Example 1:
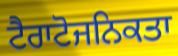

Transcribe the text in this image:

ਟੈਰਾਟੋਜਨਿਕਤਾ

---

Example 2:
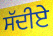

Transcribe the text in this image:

ਸੱਦੀਏ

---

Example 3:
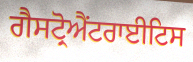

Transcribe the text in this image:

ਗੈਸਟ੍ਰੋਐਂਟਰਾਈਟਿਸ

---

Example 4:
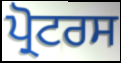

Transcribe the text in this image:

ਪ੍ਰੋਟਰਸ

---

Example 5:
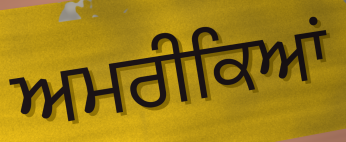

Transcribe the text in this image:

ਅਮਰੀਕਿਆਂ